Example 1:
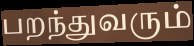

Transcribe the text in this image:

பறந்துவரும்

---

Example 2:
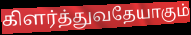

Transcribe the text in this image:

கிளர்த்துவதேயாகும்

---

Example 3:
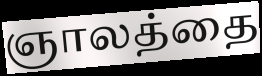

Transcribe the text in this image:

ஞாலத்தை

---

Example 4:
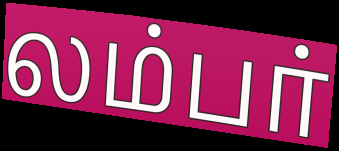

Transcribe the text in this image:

லம்பர்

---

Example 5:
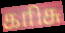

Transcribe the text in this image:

கரிசு